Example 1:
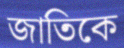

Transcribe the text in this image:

জাতিকে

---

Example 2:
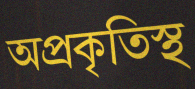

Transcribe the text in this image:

অপ্রকৃতিস্থ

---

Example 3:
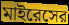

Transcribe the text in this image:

মাইরেসের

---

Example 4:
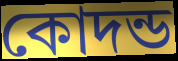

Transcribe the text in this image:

কোদন্ড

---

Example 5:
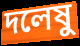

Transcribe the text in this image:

দলেষু